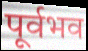
पूर्वभव